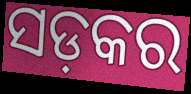
ସଡ଼କର